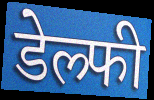
डेल्फी